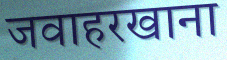
जवाहरखाना